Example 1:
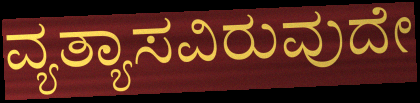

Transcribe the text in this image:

ವ್ಯತ್ಯಾಸವಿರುವುದೇ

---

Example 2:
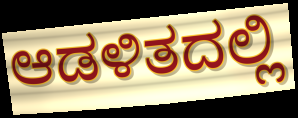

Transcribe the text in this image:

ಆಡಳಿತದಲ್ಲಿ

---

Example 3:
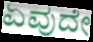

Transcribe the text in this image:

ಏವುದೇ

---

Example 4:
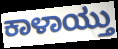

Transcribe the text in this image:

ಕಾಳಾಯ್ತು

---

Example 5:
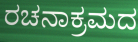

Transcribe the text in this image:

ರಚನಾಕ್ರಮದ